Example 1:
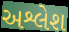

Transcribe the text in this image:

અશ્લેશ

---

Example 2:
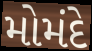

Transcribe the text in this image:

મોમંદે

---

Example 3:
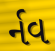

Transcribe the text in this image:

ર્નવ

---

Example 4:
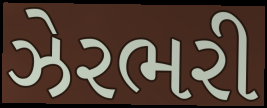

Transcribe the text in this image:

ઝેરભરી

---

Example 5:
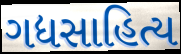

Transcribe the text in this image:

ગદ્યસાહિત્ય